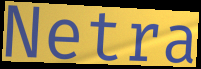
Netra